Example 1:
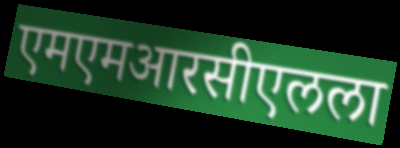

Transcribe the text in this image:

एमएमआरसीएलला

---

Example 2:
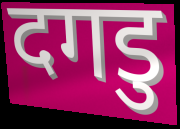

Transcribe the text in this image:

दगडु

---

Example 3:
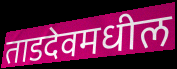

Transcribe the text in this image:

ताडदेवमधील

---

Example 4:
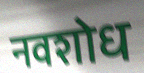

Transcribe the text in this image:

नवशोध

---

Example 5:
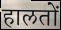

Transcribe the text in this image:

हालतों